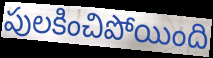
పులకించిపోయింది